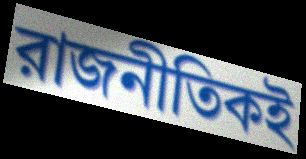
রাজনীতিকই